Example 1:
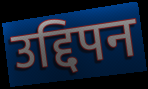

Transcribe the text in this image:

उद्दिपन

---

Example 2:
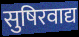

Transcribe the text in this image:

सुषिरवाद्य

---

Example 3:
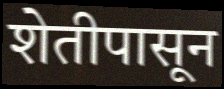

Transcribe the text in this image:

शेतीपासून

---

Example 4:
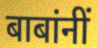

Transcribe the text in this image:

बाबांनीं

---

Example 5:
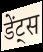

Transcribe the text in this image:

डेंट्स